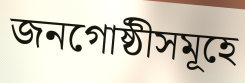
জনগোষ্ঠীসমূহে